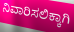
ನಿವಾರಿಸಲಿಕ್ಕಾಗಿ